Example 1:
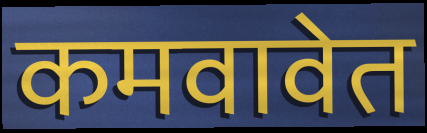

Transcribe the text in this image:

कमवावेत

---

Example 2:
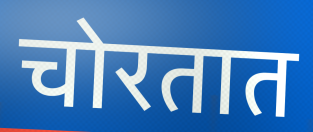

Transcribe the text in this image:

चोरतात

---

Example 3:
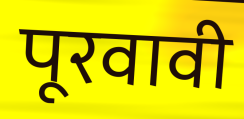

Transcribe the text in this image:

पूरवावी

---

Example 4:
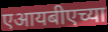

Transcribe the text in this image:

एआयबीएच्या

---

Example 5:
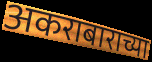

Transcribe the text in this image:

अकराबाराच्या